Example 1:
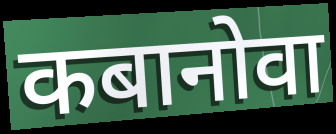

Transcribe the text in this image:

कबानोवा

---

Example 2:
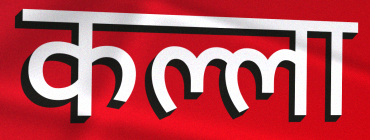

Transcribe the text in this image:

कल्ला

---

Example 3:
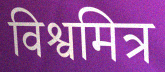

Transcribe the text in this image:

विश्वमित्र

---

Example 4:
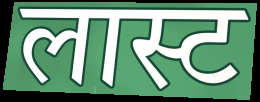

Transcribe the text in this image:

लास्ट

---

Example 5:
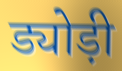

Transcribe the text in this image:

ड्योड़ी